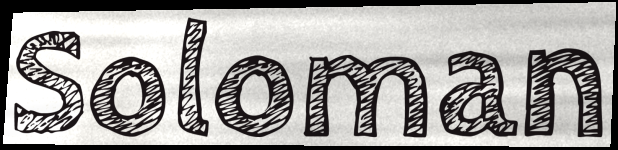
Soloman